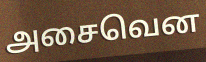
அசைவென